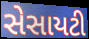
સેસાયટી